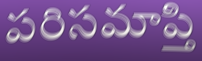
పరిసమాప్తి